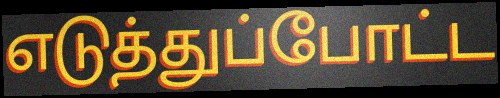
எடுத்துப்போட்ட